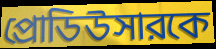
প্রোডিউসারকে